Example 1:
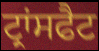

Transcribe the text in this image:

ਟ੍ਰਾਂਸਫੈਟ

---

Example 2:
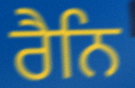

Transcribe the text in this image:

ਰੈਨਿ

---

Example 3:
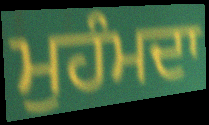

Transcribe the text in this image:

ਮੁਹੰਮਦਾ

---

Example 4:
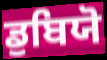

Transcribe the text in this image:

ਡੁਬਿਯੋ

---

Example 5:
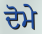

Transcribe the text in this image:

ਦੋਮੇ